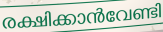
രക്ഷിക്കാൻവേണ്ടി